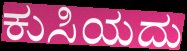
ಕುಸಿಯದು